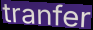
tranfer